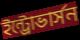
ইন্ট্রোভার্সন